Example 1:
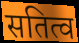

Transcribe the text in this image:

सतित्व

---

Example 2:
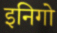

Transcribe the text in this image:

इनिगो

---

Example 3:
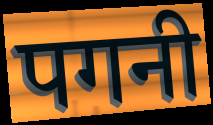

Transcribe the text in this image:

पगनी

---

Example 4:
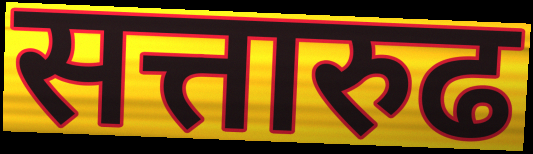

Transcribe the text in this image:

सत्तारुढ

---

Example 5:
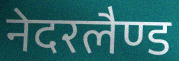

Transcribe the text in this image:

नेदरलैण्ड